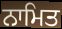
ਨਾਮਿਤ